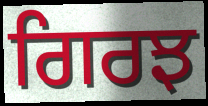
ਗਿਰਝ